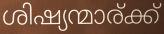
ശിഷ്യന്മാര്ക്ക്